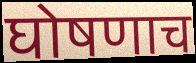
घोषणाच